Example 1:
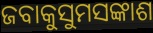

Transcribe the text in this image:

ଜବାକୁସୁମସଙ୍କାଶ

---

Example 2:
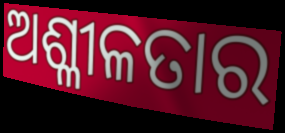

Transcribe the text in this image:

ଅଶ୍ଳୀଳତାର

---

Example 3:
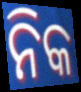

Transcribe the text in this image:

ନିକ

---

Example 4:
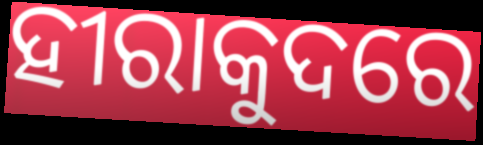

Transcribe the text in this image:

ହୀରାକୁଦରେ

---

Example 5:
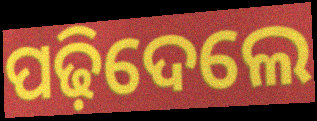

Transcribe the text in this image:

ପଢ଼ିଦେଲେ